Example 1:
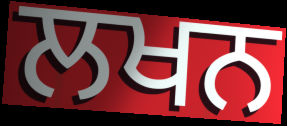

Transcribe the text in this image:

ਲਖਨ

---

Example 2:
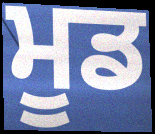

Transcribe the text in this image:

ਮੂਡ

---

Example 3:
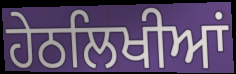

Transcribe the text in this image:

ਹੇਠਲਿਖੀਆਂ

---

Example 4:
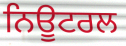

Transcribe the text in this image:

ਨਿਊਟਰਲ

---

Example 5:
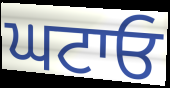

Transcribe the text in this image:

ਘਟਾਓ